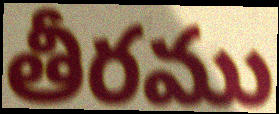
తీరము